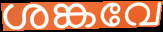
ശങ്കവേ